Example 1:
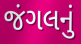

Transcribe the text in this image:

જંગલનું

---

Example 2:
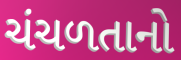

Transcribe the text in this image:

ચંચળતાનો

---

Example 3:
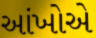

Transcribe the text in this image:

આંખોએ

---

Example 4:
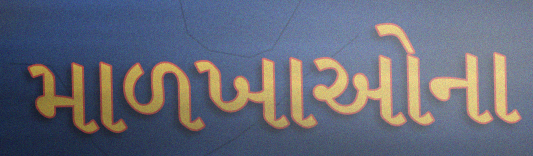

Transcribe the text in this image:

માળખાઓના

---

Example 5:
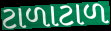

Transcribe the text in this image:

ટાળાટાળ